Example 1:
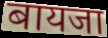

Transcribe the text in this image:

बायजा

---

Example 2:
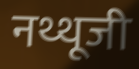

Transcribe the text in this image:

नथ्थूजी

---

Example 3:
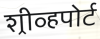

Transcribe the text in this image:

श्रीव्हपोर्ट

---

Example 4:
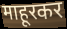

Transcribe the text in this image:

माहूरकर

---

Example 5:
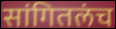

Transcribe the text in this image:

सांगितलंच